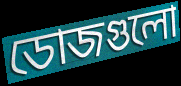
ডোজগুলো